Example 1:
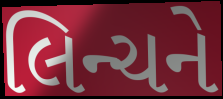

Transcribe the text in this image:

લિન્ચને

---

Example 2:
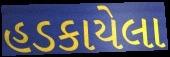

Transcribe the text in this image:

હડકાયેલા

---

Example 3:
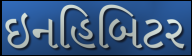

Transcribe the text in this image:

ઇનહિબિટર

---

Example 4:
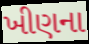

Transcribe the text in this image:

ખીણના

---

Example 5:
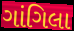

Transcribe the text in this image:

ગાંગિલા